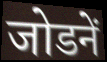
जोडनें